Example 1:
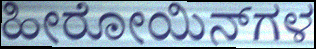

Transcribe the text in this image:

ಹೀರೋಯಿನ್‌ಗಳ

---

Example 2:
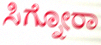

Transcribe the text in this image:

ಸಿಗ್ನೋರಾ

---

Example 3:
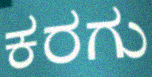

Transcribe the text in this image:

ಕರಗು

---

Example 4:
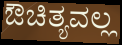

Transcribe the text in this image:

ಔಚಿತ್ಯವಲ್ಲ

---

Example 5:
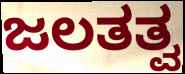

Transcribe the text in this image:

ಜಲತತ್ವ